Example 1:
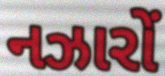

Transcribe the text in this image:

નઝારોં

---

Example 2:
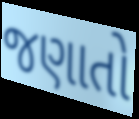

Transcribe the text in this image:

જણાતો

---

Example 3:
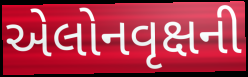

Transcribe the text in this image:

એલોનવૃક્ષની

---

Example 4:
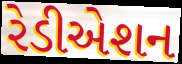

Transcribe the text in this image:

રેડીએશન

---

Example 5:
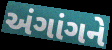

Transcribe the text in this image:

અંગાંગને